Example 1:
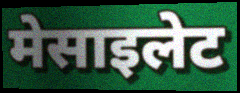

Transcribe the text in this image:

मेसाइलेट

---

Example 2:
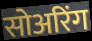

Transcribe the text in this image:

सोअरिंग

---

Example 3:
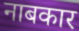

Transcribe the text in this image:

नाबकार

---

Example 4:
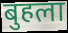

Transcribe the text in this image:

बुहला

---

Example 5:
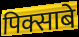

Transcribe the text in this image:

पिक्साबे